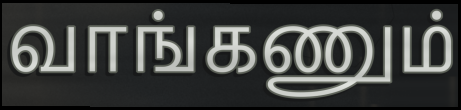
வாங்கணும்